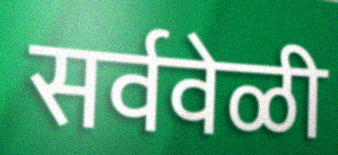
सर्ववेळी